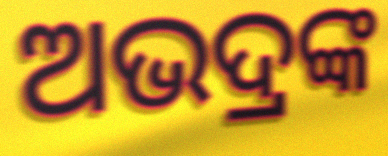
ଅଭଦ୍ରଙ୍କ